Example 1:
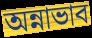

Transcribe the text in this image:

অন্নাভাব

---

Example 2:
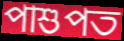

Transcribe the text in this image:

পাশুপত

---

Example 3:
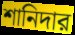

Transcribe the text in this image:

শানিদার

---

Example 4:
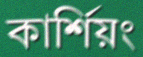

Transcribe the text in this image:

কার্শিয়ং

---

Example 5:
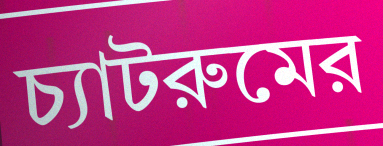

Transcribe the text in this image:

চ্যাটরুমের